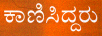
ಕಾಣಿಸಿದ್ದರು